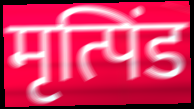
मृत्पिंड